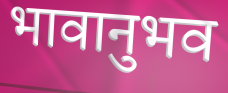
भावानुभव